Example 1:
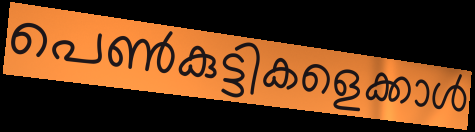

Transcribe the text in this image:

പെൺകുട്ടികളെക്കാൾ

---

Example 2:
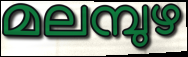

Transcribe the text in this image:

മലമ്പുഴ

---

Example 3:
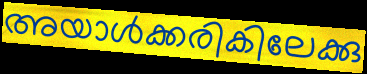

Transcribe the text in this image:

അയാൾക്കരികിലേക്കു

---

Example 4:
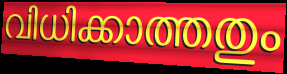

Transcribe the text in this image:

വിധിക്കാത്തതും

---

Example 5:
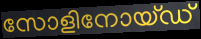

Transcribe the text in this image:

സോളിനോയ്ഡ്